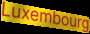
Luxembourg